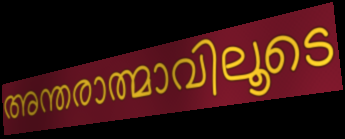
അന്തരാത്മാവിലൂടെ